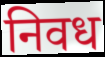
निवध